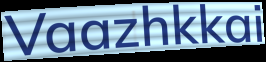
Vaazhkkai